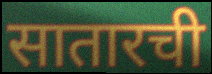
सातारची